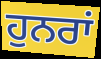
ਹੁਨਰਾਂ